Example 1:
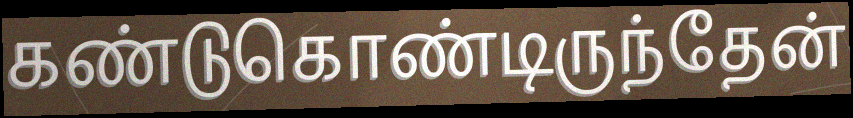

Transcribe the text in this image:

கண்டுகொண்டிருந்தேன்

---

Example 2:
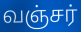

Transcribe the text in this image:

வஞ்சர்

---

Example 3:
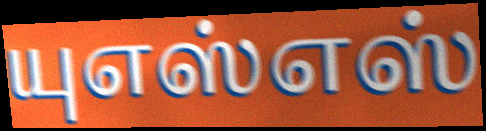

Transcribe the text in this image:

யுஎஸ்எஸ்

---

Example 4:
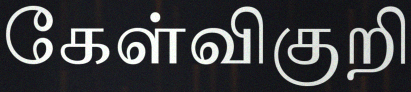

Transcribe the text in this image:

கேள்விகுறி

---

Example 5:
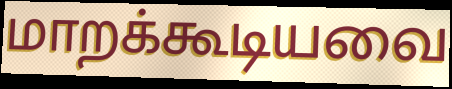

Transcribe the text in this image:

மாறக்கூடியவை